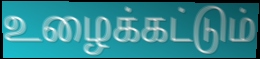
உழைக்கட்டும்